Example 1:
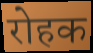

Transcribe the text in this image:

रोहक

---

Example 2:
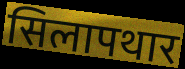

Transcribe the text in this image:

सिलापथार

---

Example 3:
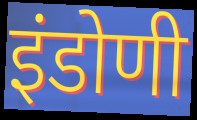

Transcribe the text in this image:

इंडोणी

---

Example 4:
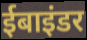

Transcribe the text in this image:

ईबाइंडर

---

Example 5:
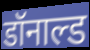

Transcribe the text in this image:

डॉनाल्ड